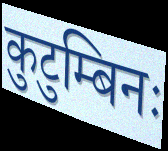
कुटुम्बिनः